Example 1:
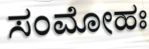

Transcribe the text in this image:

ಸಂಮೋಹಃ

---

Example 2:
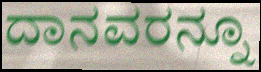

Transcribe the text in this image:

ದಾನವರನ್ನೂ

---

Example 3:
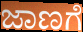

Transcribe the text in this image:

ಜಾಣಗೆ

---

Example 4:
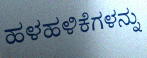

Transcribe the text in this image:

ಹಳಹಳಿಕೆಗಳನ್ನು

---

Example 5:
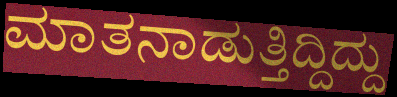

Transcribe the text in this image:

ಮಾತನಾಡುತ್ತಿದ್ದಿದ್ದು